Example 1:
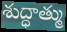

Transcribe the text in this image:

శుద్ధాత్ము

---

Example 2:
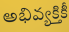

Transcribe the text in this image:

అభివ్యక్తికీ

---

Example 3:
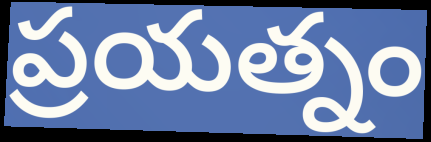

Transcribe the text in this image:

ప్రయత్నం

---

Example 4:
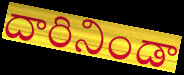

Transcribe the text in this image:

దారినిండా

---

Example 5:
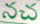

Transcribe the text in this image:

నచ